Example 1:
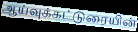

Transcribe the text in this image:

ஆய்வுக்கட்டுரையின்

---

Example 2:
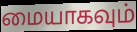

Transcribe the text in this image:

மையாகவும்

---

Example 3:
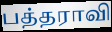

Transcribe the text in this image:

பத்தராவி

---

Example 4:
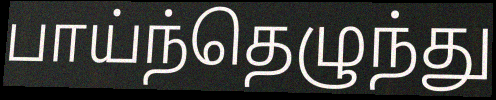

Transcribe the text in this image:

பாய்ந்தெழுந்து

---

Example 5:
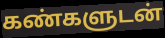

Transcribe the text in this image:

கண்களுடன்